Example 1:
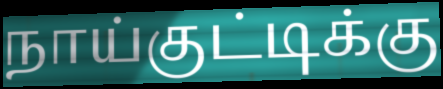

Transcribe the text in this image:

நாய்குட்டிக்கு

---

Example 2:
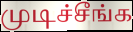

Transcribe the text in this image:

முடிச்சீங்க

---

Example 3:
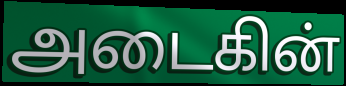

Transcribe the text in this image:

அடைகின்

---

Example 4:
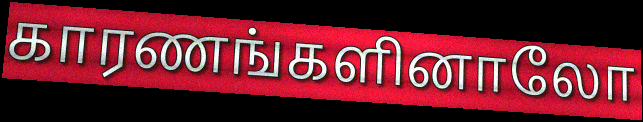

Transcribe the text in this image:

காரணங்களினாலோ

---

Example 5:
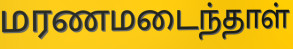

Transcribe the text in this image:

மரணமடைந்தாள்